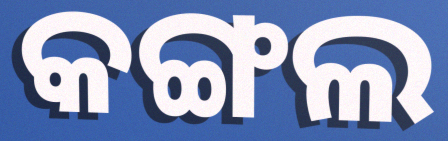
କଙ୍ଗଲ